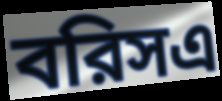
বরিসএ